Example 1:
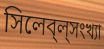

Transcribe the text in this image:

সিলেব্‌ল্‌সংখ্যা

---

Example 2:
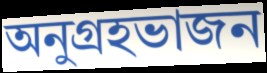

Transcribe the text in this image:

অনুগ্রহভাজন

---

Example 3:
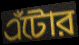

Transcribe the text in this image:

এঁটোর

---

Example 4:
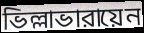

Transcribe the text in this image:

ভিল্লাভারায়েন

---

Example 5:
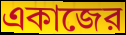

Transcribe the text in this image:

একাজের